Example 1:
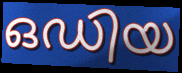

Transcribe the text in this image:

ഒഡിയ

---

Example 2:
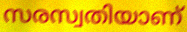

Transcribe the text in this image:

സരസ്വതിയാണ്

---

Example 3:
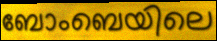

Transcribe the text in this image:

ബോംബെയിലെ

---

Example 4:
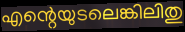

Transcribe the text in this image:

എന്റെയുടലെങ്കിലിതു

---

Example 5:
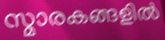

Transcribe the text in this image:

സ്മാരകങ്ങളിൽ